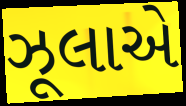
ઝૂલાએ